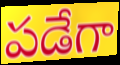
పడేగా